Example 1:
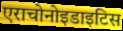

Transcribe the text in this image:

एराचोनोइडाइटिस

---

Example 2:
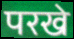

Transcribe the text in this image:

परखे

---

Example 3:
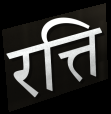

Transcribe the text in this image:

रत्ति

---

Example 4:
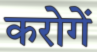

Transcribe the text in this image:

करोगें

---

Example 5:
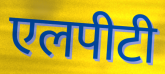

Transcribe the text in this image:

एलपीटी